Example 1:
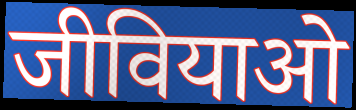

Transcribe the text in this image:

जीवियाओ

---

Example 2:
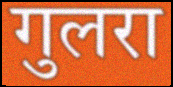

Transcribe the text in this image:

गुलरा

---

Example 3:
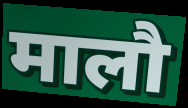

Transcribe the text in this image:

मालौ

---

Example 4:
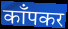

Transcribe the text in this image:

काँपकर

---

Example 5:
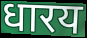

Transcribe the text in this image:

धारय